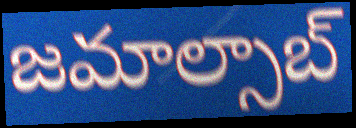
జమాల్సాబ్